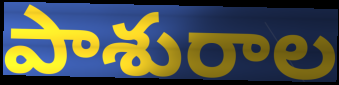
పాశురాల